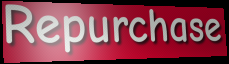
Repurchase